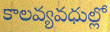
కాలవ్యవధుల్లో